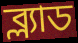
ব্ল্যাড